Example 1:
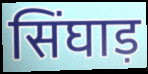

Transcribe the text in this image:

सिंघाड़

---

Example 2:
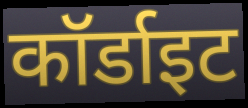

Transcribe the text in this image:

कॉर्डाइट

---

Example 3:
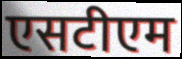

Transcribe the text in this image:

एसटीएम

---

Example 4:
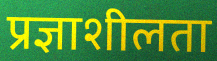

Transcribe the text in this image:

प्रज्ञाशीलता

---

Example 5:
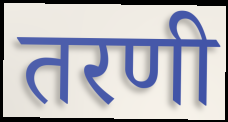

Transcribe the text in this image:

तरणी